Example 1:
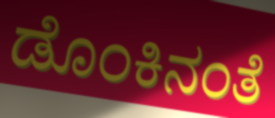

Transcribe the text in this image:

ಡೊಂಕಿನಂತೆ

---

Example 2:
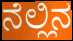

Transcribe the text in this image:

ನೆಲ್ಲಿನ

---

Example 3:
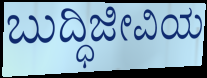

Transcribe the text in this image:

ಬುದ್ಧಿಜೀವಿಯ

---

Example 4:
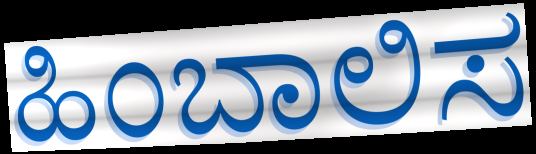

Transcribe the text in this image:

ಹಿಂಬಾಲಿಸ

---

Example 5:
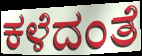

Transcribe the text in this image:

ಕಳೆದಂತೆ